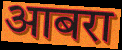
आबरा